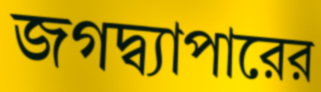
জগদ্ব্যাপারের